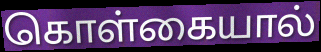
கொள்கையால்